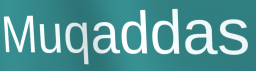
Muqaddas